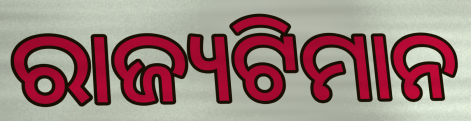
ରାଜ୍ୟଟିମାନ